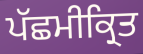
ਪੱਛਮੀਕ੍ਰਿਤ